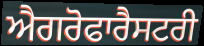
ਐਗਰੋਫਾਰੈਸਟਰੀ